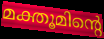
മക്തൂമിന്റെ